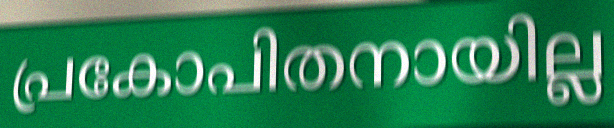
പ്രകോപിതനായില്ല